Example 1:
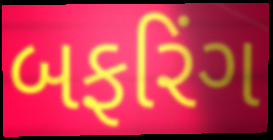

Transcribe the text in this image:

બફરિંગ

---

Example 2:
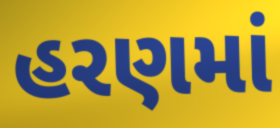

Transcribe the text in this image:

હરણમાં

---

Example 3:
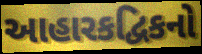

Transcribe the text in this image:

આહારકદ્વિકનો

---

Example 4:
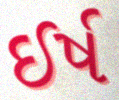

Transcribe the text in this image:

ઈર્ષ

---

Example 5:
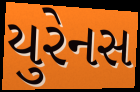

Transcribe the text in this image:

યુરેનસ